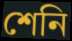
শেনি